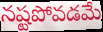
నష్టపోవడమే